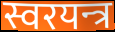
स्वरयन्त्र